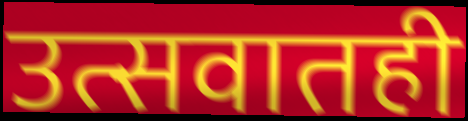
उत्सवातही